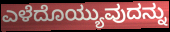
ಎಳೆದೊಯ್ಯುವುದನ್ನು